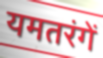
यमतरंगें